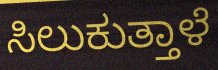
ಸಿಲುಕುತ್ತಾಳೆ